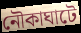
নৌকাঘাটে